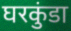
घरकुंडा